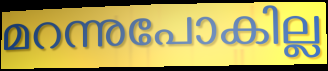
മറന്നുപോകില്ല